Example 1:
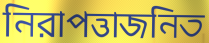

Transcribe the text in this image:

নিরাপত্তাজনিত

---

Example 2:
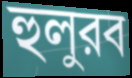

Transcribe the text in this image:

হুলুরব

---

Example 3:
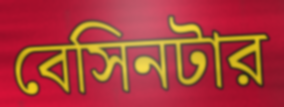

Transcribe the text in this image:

বেসিনটার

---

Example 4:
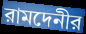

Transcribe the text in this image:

রামদেনীর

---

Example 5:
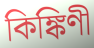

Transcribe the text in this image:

কিঙ্কিণী